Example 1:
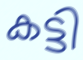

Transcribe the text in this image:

കട്ടി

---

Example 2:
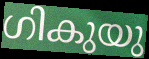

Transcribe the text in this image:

ഗികുയു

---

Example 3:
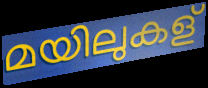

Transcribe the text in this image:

മയിലുകള്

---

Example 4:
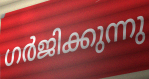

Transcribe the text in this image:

ഗർജിക്കുന്നു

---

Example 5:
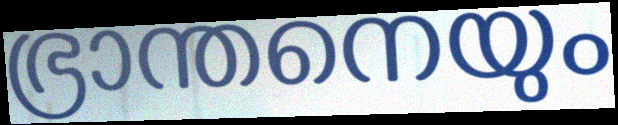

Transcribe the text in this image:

ഭ്രാന്തനെയും